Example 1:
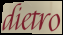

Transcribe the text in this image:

dietro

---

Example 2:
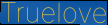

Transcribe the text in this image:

Truelove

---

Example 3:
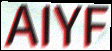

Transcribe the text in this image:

AIYF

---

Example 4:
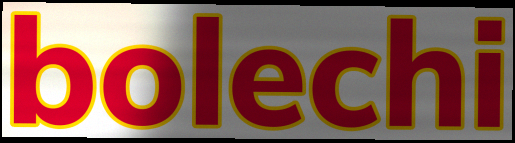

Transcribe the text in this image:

bolechi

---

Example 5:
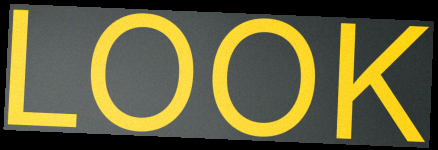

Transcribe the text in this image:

LOOK